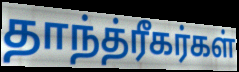
தாந்த்ரீகர்கள்